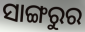
ସାଙ୍ଗରୁର